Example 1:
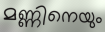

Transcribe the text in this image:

മണ്ണിനെയും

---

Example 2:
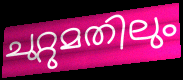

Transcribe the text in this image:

ചുറ്റുമതിലും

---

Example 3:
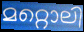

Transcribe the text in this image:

മറ്റൊലി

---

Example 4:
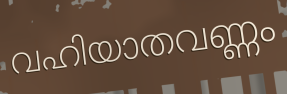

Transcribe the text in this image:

വഹിയാതവണ്ണം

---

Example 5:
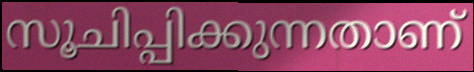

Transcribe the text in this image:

സൂചിപ്പിക്കുന്നതാണ്